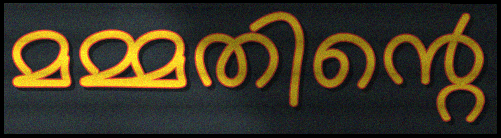
മമ്മതിന്റെ